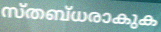
സ്തബ്ധരാകുക